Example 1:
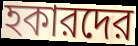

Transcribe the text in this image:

হকারদের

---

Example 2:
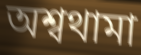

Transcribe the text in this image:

অশ্বথামা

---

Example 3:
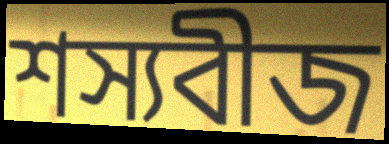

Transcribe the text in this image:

শস্যবীজ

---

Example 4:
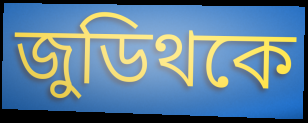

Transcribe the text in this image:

জুডিথকে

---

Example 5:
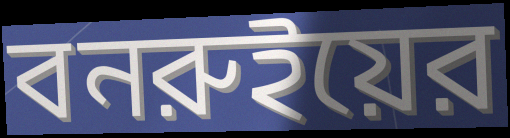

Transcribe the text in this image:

বনরুইয়ের